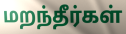
மறந்தீர்கள்